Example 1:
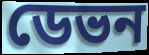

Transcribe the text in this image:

ডেভন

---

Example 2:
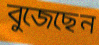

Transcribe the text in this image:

বুজেছেন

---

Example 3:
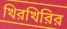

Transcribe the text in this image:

খিরখিরির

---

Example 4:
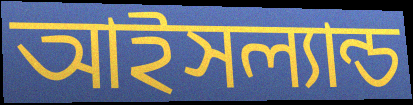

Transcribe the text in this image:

আইসল্যান্ড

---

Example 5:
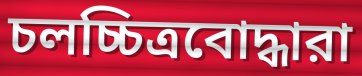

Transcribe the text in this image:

চলচ্চিত্রবোদ্ধারা